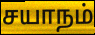
சயாநம்